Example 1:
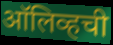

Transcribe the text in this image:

ऑलिव्हची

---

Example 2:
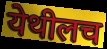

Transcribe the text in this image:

येथीलच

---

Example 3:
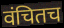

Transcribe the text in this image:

वंचितच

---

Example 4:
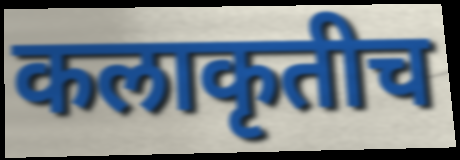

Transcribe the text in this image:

कलाकृतीच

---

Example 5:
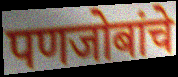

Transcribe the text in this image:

पणजोबांचे